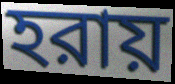
হরায়